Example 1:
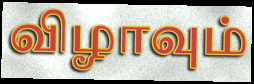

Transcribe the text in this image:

விழாவும்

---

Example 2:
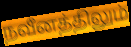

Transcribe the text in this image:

நவீனத்திலும்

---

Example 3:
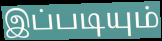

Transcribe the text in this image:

இப்படியும்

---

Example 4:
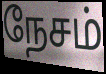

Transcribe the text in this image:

நேசம்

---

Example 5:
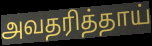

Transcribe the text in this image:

அவதரித்தாய்